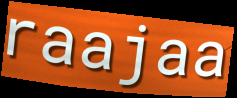
raajaa